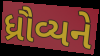
ધ્રૌવ્યને